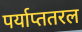
पर्याप्ततरल